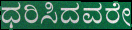
ಧರಿಸಿದವರೇ